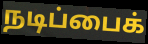
நடிப்பைக்